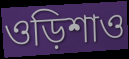
ওড়িশাও